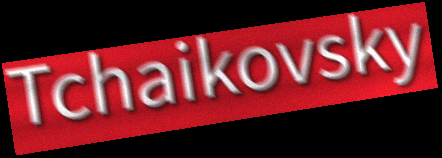
Tchaikovsky